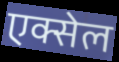
एक्सेल